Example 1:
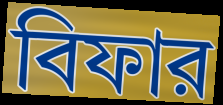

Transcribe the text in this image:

বিফার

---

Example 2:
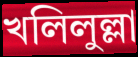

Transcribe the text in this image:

খলিলুল্লা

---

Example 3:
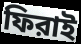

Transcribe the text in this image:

ফিরাই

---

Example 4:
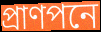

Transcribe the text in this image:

প্রাণপনে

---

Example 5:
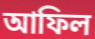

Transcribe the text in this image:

আফিল